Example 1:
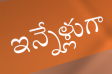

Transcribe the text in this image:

ఇన్నేళ్లుగా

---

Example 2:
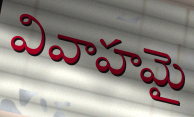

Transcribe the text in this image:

వివాహమై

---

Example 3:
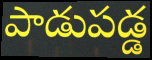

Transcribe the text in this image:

పాడుపడ్డ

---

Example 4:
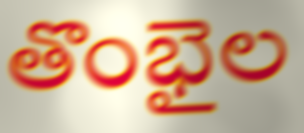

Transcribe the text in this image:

తొంభైల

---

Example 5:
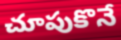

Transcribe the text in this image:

చూపుకొనే